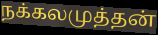
நக்கலமுத்தன்